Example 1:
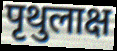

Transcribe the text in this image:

पृथुलाक्ष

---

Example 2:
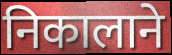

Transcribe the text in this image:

निकालाने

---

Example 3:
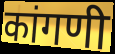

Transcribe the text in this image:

कांगणी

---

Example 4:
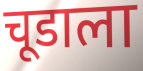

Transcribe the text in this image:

चूडाला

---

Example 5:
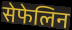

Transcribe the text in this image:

सेफेलिन